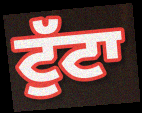
ਟੁੱਟਾ